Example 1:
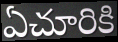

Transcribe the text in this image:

ఏచూరికి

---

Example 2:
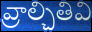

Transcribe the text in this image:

వ్రాల్చితివి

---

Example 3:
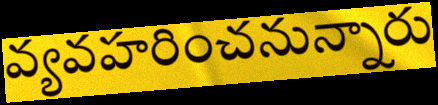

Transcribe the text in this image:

వ్యవహరించనున్నారు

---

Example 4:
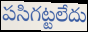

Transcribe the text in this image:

పసిగట్టలేదు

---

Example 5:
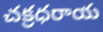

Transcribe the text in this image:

చక్రధరాయ